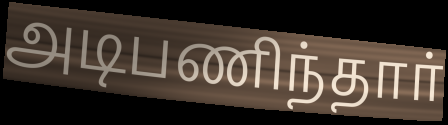
அடிபணிந்தார்